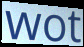
wot